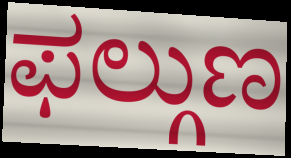
ಫಲ್ಗುಣ